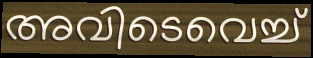
അവിടെവെച്ച്